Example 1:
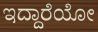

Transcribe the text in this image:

ಇದ್ದಾರೆಯೋ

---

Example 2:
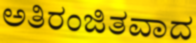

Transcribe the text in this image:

ಅತಿರಂಜಿತವಾದ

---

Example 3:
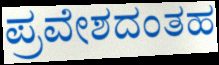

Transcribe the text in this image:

ಪ್ರವೇಶದಂತಹ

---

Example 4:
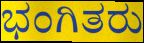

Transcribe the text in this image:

ಭಂಗಿತರು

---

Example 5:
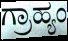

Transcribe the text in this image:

ಗ್ರಾಹ್ಯಂ